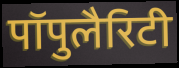
पॉपुलैरिटी